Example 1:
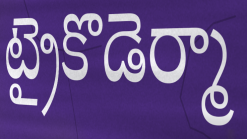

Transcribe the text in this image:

ట్రైకొడెర్మా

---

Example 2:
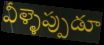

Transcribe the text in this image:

వీళ్ళెప్పుడూ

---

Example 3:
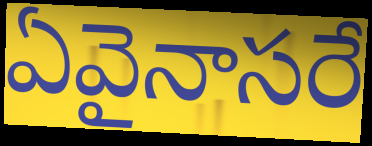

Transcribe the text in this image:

ఏవైనాసరే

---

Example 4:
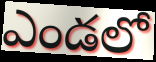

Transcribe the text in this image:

ఎండలో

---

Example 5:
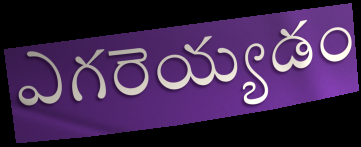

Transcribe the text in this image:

ఎగరెయ్యడం